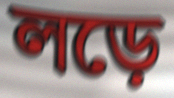
লড়ে